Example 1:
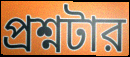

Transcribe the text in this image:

প্রশ্নটার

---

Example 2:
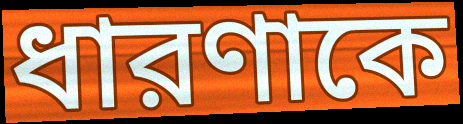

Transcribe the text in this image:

ধারণাকে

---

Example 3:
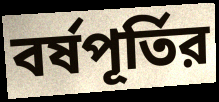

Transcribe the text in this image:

বর্ষপূর্তির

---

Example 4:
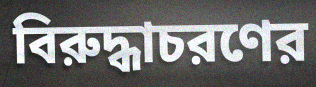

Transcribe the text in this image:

বিরুদ্ধাচরণের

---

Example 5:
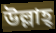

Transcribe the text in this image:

উল্লাহ্